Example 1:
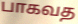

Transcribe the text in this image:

பாகவத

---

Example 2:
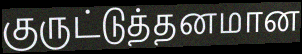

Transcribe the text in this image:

குருட்டுத்தனமான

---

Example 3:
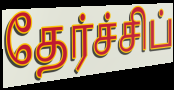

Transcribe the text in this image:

தேர்ச்சிப்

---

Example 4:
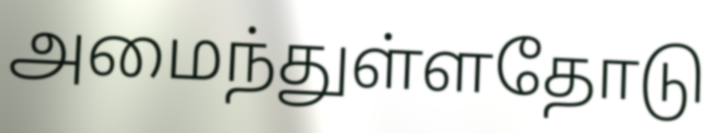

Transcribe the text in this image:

அமைந்துள்ளதோடு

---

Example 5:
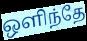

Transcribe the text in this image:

ஒளிந்தே